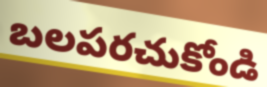
బలపరచుకోండి